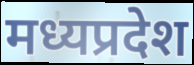
मध्यप्रदेश